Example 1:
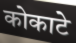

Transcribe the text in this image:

कोकाटे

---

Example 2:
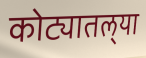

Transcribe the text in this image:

कोट्यातल्या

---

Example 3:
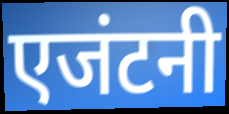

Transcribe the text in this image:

एजंटनी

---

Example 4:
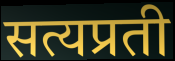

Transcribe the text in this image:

सत्यप्रती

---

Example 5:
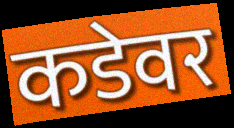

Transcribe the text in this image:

कडेवर